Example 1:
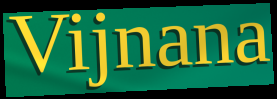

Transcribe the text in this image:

Vijnana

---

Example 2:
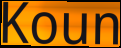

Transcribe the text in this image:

Koun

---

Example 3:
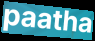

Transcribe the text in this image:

paatha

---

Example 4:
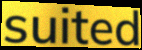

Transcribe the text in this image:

suited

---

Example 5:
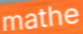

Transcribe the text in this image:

mathe